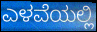
ಎಳವೆಯಲ್ಲಿ